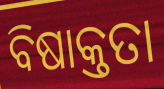
ବିଷାକ୍ତତା